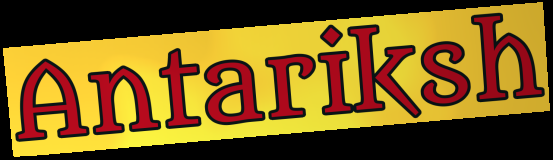
Antariksh